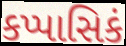
કપ્પાસિકં